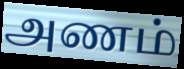
அணம்